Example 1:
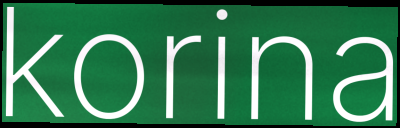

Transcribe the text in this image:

korina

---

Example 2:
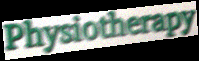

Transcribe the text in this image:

Physiotherapy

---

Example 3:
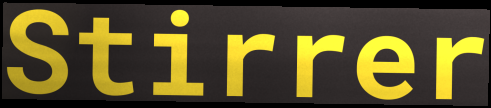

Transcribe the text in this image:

Stirrer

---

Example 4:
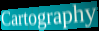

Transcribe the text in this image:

Cartography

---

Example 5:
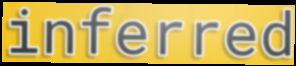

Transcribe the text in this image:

inferred